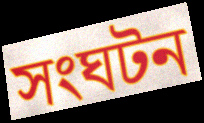
সংঘটন